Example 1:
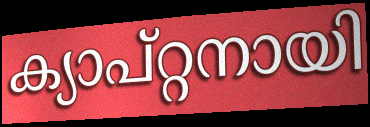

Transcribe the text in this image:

ക്യാപ്റ്റനായി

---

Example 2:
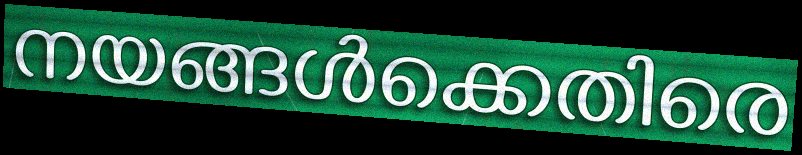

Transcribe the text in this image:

നയങ്ങൾക്കെതിരെ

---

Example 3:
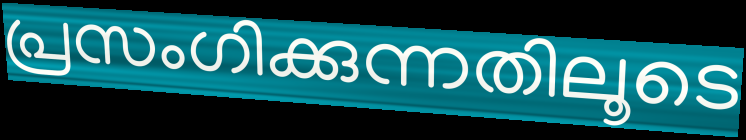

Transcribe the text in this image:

പ്രസംഗിക്കുന്നതിലൂടെ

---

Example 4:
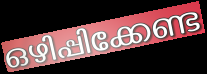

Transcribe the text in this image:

ഒഴിപ്പിക്കേണ്ട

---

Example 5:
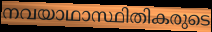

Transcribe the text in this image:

നവയാഥാസ്ഥിതികരുടെ